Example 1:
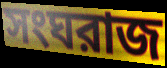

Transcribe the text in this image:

সংঘরাজ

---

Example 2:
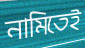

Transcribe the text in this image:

নামিতেই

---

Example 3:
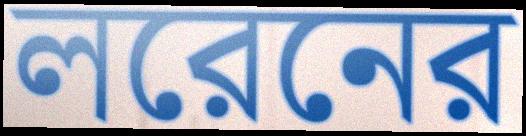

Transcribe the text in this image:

লরেনের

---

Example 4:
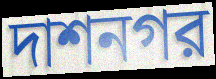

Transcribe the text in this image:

দাশনগর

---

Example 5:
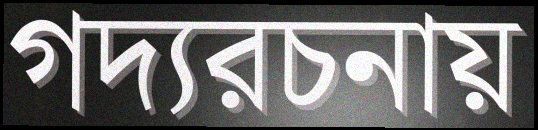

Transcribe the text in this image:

গদ্যরচনায়